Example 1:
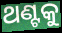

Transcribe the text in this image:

ଥଣ୍ଟକୁ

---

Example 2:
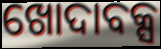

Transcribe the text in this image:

ଖୋଦାବକ୍ସ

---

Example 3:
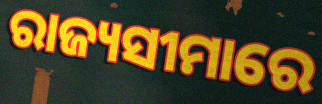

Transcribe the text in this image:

ରାଜ୍ୟସୀମାରେ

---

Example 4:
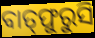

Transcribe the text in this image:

ବାତ୍‌ଫୁରୁସି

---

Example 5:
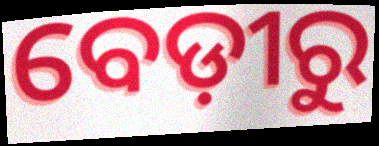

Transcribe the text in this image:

ବେଡ଼ୀରୁ